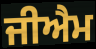
ਜੀਐਮ